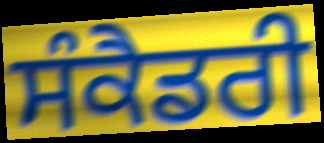
ਸੰਕੈਡਰੀ